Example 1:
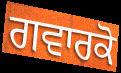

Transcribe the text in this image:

ਗਵਾਰਕੋ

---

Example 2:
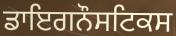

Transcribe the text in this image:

ਡਾਇਗਨੌਸਟਿਕਸ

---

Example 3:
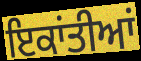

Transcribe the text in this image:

ਇਕਾਂਤੀਆਂ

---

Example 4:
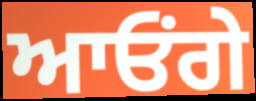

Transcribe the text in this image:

ਆਓਂਗੇ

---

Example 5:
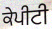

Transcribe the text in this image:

ਕੇਪੀਟੀ